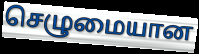
செழுமையான